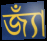
জ্যাঁ